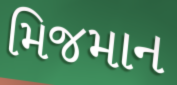
મિજમાન